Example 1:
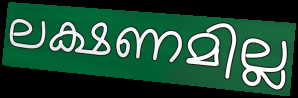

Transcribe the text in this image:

ലക്ഷണമില്ല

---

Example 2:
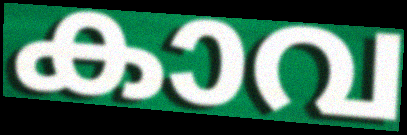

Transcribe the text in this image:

കാവ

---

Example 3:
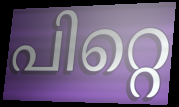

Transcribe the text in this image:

പിറ്റെ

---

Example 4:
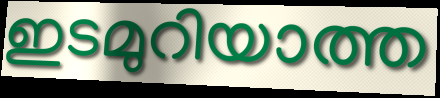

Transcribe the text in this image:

ഇടമുറിയാത്ത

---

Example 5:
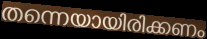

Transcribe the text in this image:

തന്നെയായിരിക്കണം